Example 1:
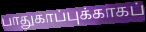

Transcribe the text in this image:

பாதுகாப்புக்காகப்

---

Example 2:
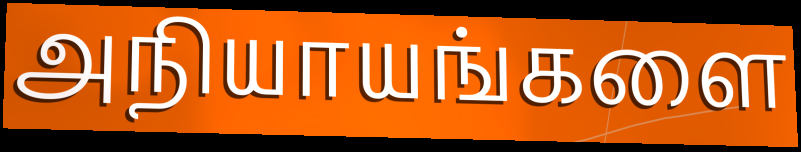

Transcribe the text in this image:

அநியாயங்களை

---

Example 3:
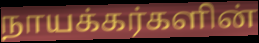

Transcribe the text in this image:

நாயக்கர்களின்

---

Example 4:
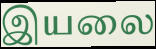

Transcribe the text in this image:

இயலை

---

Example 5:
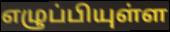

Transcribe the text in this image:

எழுப்பியுள்ள